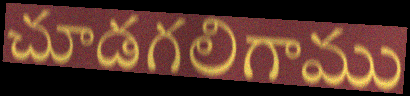
చూడగలిగాము